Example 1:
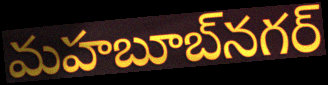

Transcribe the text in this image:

మహబూబ్‌నగర్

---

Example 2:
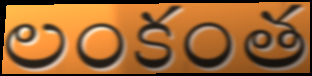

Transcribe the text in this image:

లంకంత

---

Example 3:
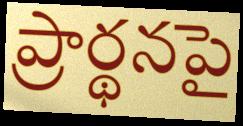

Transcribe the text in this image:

ప్రార్థనపై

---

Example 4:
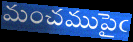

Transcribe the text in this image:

మంచముపైఁ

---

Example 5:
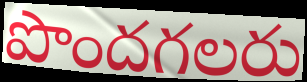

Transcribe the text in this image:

పొందగలరు